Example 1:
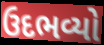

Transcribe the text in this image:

ઉદભવ્યો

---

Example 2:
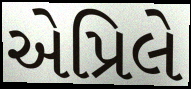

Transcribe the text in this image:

એપ્રિલે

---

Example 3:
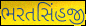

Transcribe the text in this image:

ભરતસિંહજી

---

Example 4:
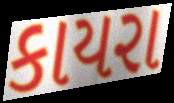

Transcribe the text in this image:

કાયરા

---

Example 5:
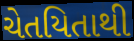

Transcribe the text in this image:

ચેતયિતાથી